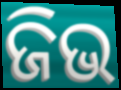
ଜିଭ